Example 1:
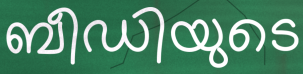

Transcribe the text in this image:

ബീഡിയുടെ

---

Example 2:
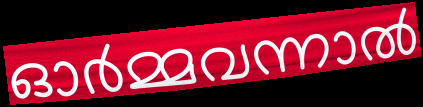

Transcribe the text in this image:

ഓർമ്മവന്നാൽ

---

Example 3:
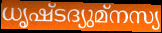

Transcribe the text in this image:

ധൃഷ്ടദ്യുമ്നസ്യ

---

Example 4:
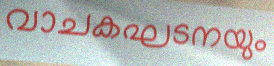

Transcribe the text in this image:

വാചകഘടനയും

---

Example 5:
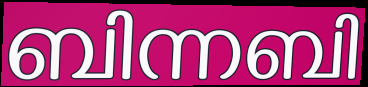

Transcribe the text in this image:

ബിന്നബി